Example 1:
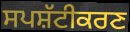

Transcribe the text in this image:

ਸਪਸ਼ੱਟੀਕਰਣ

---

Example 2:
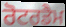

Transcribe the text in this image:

ਰੋਟਰਡੈਮ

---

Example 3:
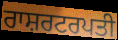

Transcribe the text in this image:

ਰਾਸ਼ਰਟਰਪਤੀ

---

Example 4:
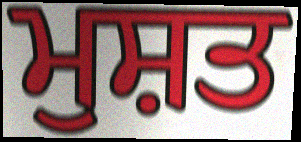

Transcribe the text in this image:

ਮੁਸ਼ਤ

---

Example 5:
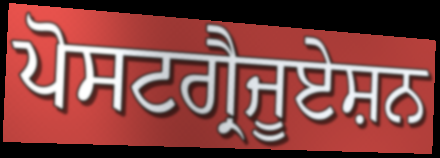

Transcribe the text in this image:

ਪੋਸਟਗ੍ਰੈਜੂਏਸ਼ਨ